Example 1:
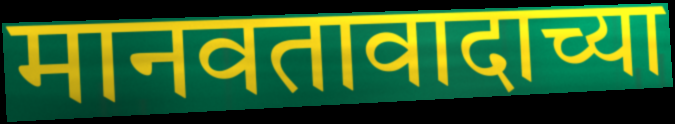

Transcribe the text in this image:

मानवतावादाच्या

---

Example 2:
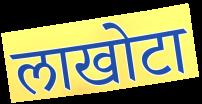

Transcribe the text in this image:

लाखोटा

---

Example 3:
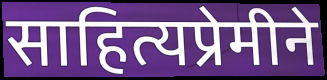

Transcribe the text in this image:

साहित्यप्रेमीने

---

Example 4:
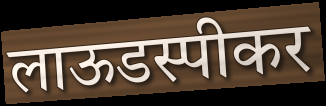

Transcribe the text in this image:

लाऊडस्पीकर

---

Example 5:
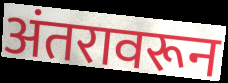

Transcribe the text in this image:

अंतरावरून